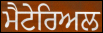
ਮੈਟੇਰਿਅਲ